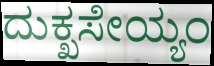
ದುಕ್ಖಸೇಯ್ಯಂ